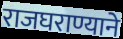
राजघराण्याने